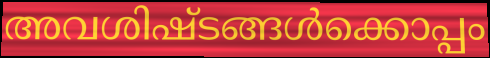
അവശിഷ്ടങ്ങൾക്കൊപ്പം